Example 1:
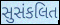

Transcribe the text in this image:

સુસંકલિત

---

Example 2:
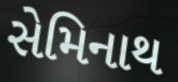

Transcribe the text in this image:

સેમિનાથ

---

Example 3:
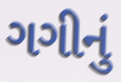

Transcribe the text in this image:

ગગીનું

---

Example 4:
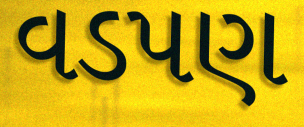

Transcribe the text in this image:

વડપણ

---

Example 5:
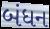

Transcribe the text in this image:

બંધન